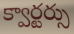
క్వార్టర్సు